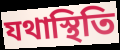
যথাস্থিতি